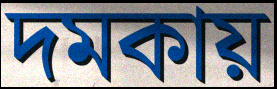
দমকায়